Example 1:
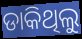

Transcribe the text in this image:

ଡାକିଥିଲୁ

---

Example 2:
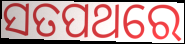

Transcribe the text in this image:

ସତପଥରେ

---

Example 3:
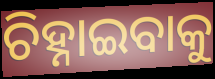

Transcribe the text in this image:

ଚିହ୍ନାଇବାକୁ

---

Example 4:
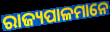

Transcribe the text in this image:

ରାଜ୍ୟପାଳମାନେ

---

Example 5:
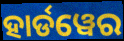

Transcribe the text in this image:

ହାର୍ଡୱେର